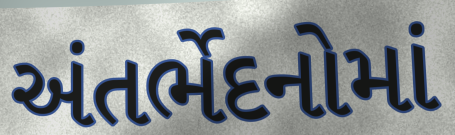
અંતર્ભેદનોમાં